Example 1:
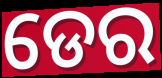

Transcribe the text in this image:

ଡେର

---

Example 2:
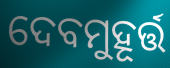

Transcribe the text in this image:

ଦେବମୁହୂର୍ତ୍ତ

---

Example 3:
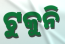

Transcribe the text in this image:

ଟୁକୁନି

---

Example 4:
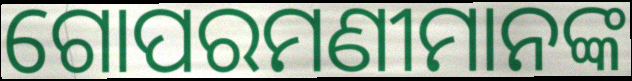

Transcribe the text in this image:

ଗୋପରମଣୀମାନଙ୍କ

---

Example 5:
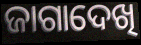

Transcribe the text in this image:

ଜାଗାଦେଖି